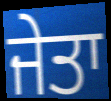
ਜੇਤਾ